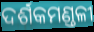
ଦର୍ଶକମଣ୍ଡଳୀ